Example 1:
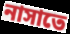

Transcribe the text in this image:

নাসাতে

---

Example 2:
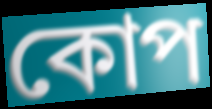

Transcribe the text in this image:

কোপ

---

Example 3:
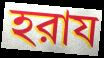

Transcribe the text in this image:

হরায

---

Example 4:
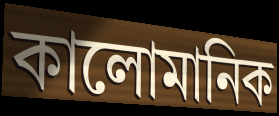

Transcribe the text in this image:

কালোমানিক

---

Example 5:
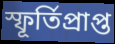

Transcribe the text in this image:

স্ফূর্তিপ্রাপ্ত